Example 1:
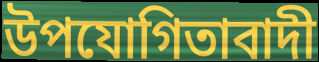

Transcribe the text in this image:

উপযোগিতাবাদী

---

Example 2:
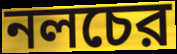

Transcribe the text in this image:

নলচের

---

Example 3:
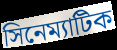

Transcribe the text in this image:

সিনেম্যাটিক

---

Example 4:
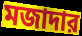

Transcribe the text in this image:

মজাদার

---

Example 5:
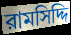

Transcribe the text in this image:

রামসিদ্দি